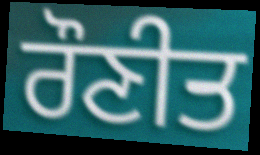
ਰੌਣੀਤ